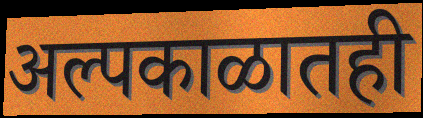
अल्पकाळातही